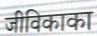
जीविकाका